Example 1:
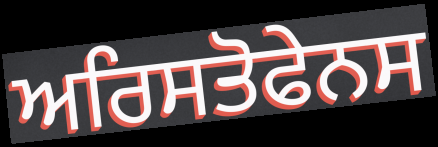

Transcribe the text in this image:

ਅਰਿਸਤੋਫੇਨਸ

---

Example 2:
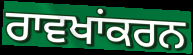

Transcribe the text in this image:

ਰਾਵਖਾਂਕਰਨ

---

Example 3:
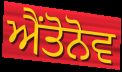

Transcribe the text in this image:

ਐਂਤੋਨੋਵ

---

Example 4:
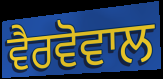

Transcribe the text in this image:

ਵੈਰਵੋਵਾਲ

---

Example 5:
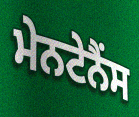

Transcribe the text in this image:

ਮੇਨਟੇਨੈਂਸ